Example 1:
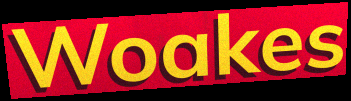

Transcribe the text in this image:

Woakes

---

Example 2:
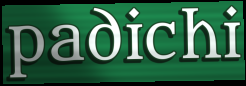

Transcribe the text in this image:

padichi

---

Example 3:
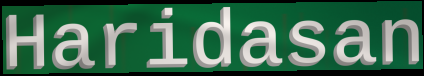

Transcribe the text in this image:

Haridasan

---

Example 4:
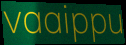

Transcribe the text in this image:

vaaippu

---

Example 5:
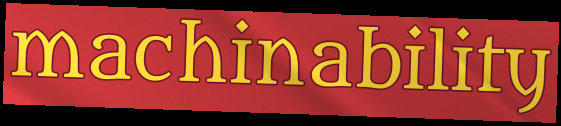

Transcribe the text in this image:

machinability